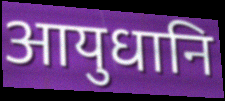
आयुधानि